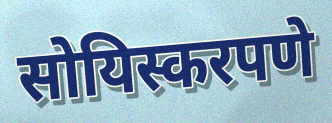
सोयिस्करपणे